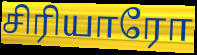
சிரியாரோ